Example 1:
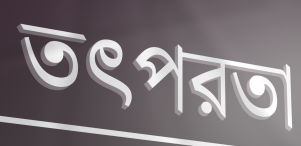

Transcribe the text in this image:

তৎপরতা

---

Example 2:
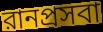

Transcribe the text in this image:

রানপ্রসবা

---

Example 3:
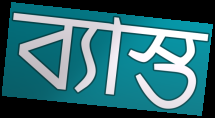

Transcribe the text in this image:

ব্যাস্ত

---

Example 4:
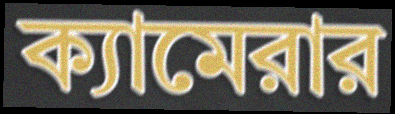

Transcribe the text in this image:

ক্যামেরার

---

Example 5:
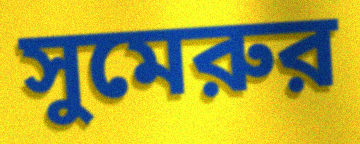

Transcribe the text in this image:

সুমেরুর